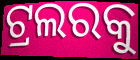
ଟ୍ରଲରକୁ